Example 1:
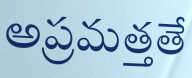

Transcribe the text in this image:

అప్రమత్తతే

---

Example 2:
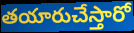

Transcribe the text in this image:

తయారుచేస్తారో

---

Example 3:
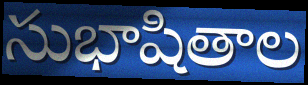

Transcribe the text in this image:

సుభాషితాల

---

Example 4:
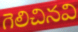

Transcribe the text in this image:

గెలిచినవి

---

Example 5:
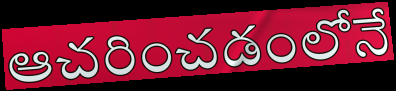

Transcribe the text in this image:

ఆచరించడంలోనే